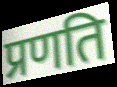
प्रणति